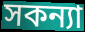
সকন্যা